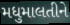
મધુમાલતીને